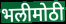
भलीमोठी